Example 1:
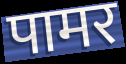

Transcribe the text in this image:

पामर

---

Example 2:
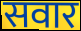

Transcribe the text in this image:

सवार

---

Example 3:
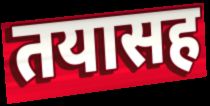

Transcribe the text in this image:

तयासह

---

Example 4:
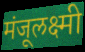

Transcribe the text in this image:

मंजूलक्ष्मी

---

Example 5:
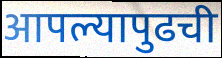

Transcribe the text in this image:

आपल्यापुढची